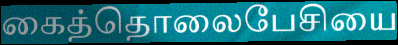
கைத்தொலைபேசியை